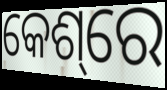
କେଶ୍‌ରେ